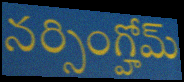
నర్సింగ్హోమ్